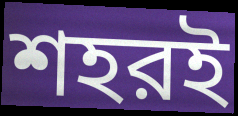
শহরই